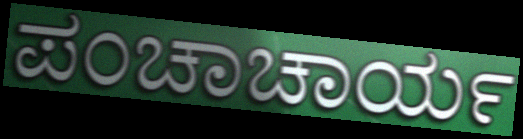
ಪಂಚಾಚಾರ್ಯ